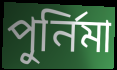
পুর্নিমা